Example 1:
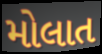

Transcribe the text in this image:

મોલાત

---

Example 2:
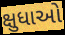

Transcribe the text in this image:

ક્ષુધાઓ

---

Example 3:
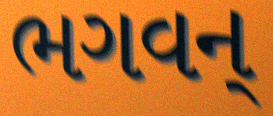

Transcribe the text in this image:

ભગવન્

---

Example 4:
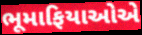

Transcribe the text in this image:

ભૂમાફિયાઓએ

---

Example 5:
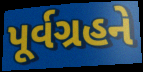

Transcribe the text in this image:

પૂર્વગ્રહને